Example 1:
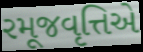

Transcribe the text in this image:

રમૂજવૃત્તિએ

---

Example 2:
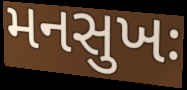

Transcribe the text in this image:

મનસુખઃ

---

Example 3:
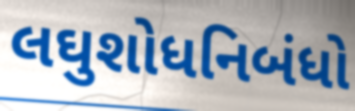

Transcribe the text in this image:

લઘુશોધનિબંધો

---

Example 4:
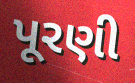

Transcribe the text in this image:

પૂરણી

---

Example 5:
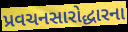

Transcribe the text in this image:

પ્રવચનસારોદ્ધારના